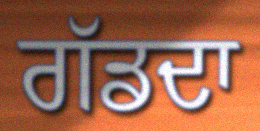
ਗੱਡਦਾ